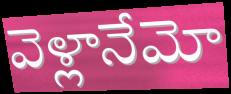
వెళ్లానేమో